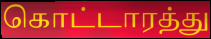
கொட்டாரத்து